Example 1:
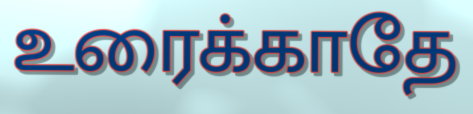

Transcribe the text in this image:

உரைக்காதே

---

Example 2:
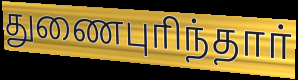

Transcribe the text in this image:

துணைபுரிந்தார்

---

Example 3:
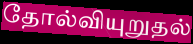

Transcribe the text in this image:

தோல்வியுறுதல்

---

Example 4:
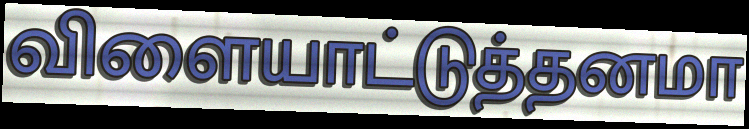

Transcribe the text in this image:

விளையாட்டுத்தனமா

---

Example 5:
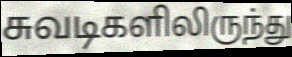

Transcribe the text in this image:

சுவடிகளிலிருந்து